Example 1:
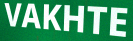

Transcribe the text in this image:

VAKHTE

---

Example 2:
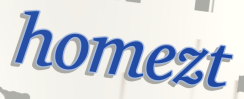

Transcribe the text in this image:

homezt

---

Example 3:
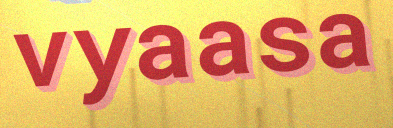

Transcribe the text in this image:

vyaasa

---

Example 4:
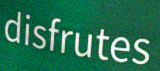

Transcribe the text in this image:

disfrutes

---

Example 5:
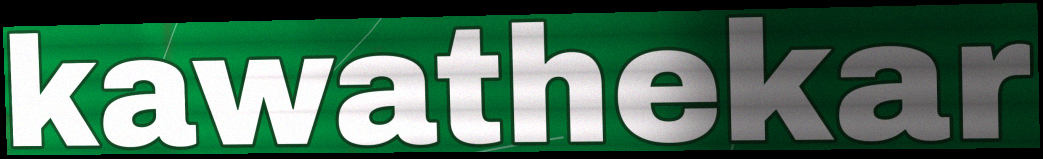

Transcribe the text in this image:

kawathekar